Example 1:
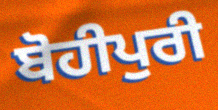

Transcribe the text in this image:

ਬੋਹੀਪੁਰੀ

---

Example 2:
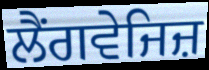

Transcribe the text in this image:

ਲੈਂਗਵੇਜਿਜ਼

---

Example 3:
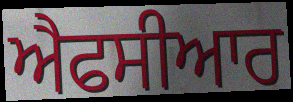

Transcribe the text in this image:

ਐਫਸੀਆਰ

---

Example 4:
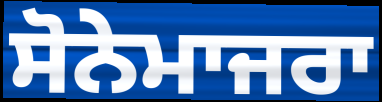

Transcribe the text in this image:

ਸੋਨੇਮਾਜਰਾ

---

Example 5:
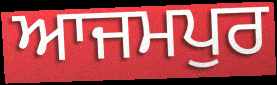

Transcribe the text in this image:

ਆਜਮਪੁਰ